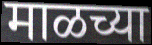
माळच्या